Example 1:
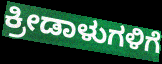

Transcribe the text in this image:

ಕ್ರೀಡಾಳುಗಳಿಗೆ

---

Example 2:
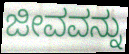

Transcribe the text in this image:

ಜೀವವನ್ನು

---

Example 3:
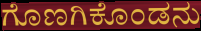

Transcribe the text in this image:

ಗೊಣಗಿಕೊಂಡನು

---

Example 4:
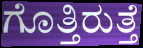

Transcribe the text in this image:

ಗೊತ್ತಿರುತ್ತೆ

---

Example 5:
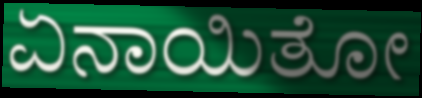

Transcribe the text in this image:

ಏನಾಯಿತೋ